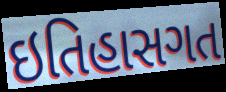
ઇતિહાસગત